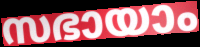
സഭായാം